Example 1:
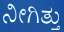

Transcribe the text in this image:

ನೀಗಿತ್ತು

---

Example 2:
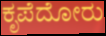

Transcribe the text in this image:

ಕೃಪೆದೋರು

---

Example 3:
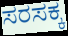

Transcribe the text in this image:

ಸರಸಕ್ಕ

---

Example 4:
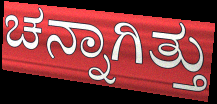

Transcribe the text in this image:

ಚನ್ನಾಗಿತ್ತು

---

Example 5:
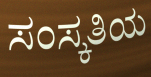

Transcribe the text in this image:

ಸಂಸ್ಕತಿಯ